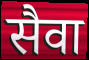
सैवा